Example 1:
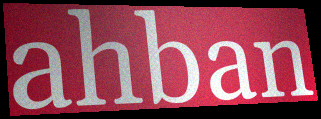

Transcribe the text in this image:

ahban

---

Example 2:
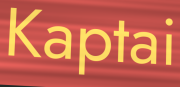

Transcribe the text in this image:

Kaptai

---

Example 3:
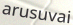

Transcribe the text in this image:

arusuvai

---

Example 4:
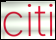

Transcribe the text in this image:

citi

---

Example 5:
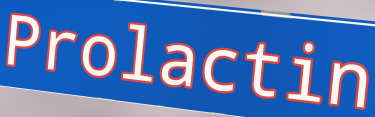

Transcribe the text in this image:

Prolactin